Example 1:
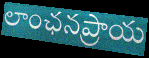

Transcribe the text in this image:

లాంఛనప్రాయ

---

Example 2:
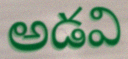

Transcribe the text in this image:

అడవి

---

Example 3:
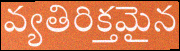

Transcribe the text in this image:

వ్యతిరిక్తమైన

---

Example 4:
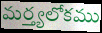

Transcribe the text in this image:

మర్త్యలోకము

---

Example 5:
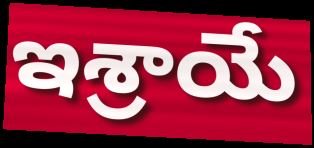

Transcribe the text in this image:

ఇశ్రాయే